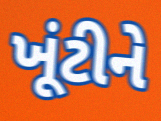
ખૂંટીને